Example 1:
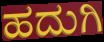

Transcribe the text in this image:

ಹದುಗಿ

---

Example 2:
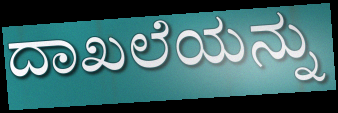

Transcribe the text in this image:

ದಾಖಲೆಯನ್ನು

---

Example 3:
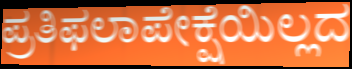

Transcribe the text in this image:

ಪ್ರತಿಫಲಾಪೇಕ್ಷೆಯಿಲ್ಲದ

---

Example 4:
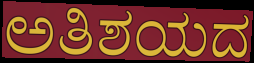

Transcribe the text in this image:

ಅತಿಶಯದ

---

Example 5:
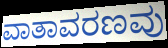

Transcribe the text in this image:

ವಾತಾವರಣವು